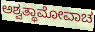
ಅಶ್ವತ್ಥಾಮೋವಾಚ